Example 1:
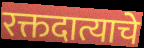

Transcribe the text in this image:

रक्तदात्याचे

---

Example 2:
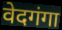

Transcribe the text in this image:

वेदगंगा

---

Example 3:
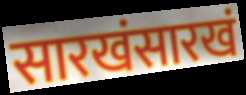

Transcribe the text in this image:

सारखंसारखं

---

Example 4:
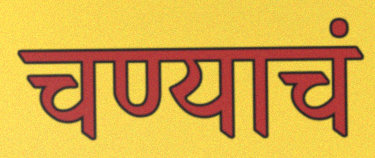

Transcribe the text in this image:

चण्याचं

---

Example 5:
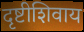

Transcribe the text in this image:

दृष्टीशिवाय